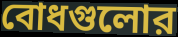
বোধগুলোর